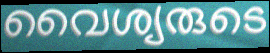
വൈശ്യരുടെ